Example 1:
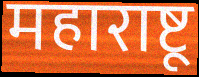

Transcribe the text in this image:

महाराष्टू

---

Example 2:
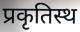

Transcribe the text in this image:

प्रकृतिस्थ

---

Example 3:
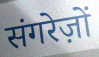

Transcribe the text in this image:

संगरेज़ों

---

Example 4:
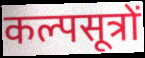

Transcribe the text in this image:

कल्पसूत्रों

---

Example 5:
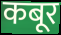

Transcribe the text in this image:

कबूर